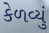
કેળવ્યું